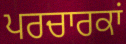
ਪਰਚਾਰਕਾਂ